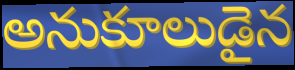
అనుకూలుడైన